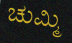
ಚುಮ್ಮಿ